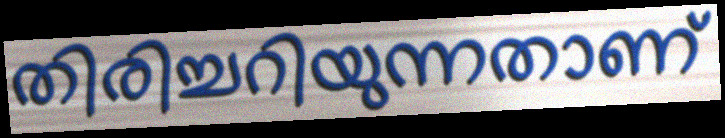
തിരിച്ചറിയുന്നതാണ്